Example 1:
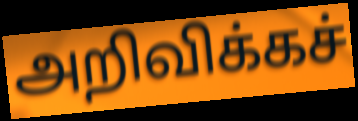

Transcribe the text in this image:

அறிவிக்கச்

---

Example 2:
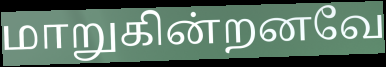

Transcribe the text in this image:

மாறுகின்றனவே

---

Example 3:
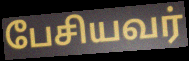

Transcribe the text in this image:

பேசியவர்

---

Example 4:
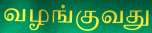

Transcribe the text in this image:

வழங்குவது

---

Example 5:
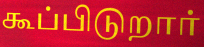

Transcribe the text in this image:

கூப்பிடுறார்